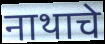
नाथाचे